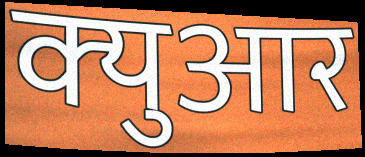
क्युआर